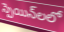
స్పెయిన్‌లలో